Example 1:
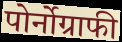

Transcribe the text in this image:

पोर्नोग्राफी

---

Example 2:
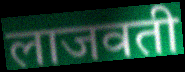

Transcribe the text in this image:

लाजवती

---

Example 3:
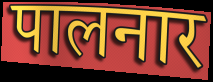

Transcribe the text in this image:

पालनार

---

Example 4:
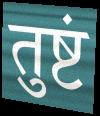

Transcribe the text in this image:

तुष्टं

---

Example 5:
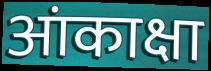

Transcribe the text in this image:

आंकाक्षा